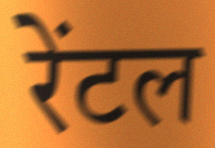
रेंटल